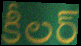
కీలర్